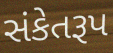
સંકેતરૂપ